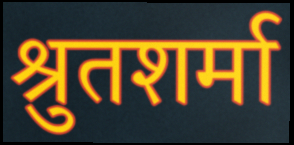
श्रुतशर्मा